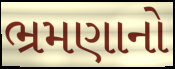
ભ્રમણાનો